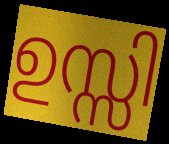
ഉസ്സി